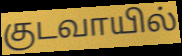
குடவாயில்